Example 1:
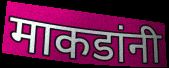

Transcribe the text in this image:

माकडांनी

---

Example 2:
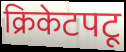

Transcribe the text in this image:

क्रिकेटपटू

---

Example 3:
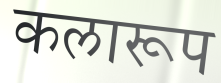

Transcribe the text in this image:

कलारूप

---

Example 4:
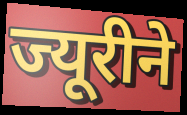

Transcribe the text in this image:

ज्यूरीने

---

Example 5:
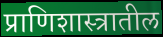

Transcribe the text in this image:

प्राणिशास्त्रातील